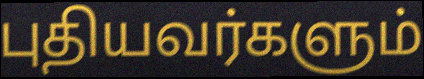
புதியவர்களும்